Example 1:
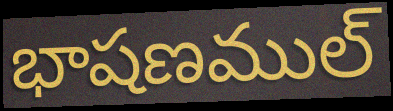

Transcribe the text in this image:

భాషణముల్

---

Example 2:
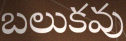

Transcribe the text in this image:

బలుకవు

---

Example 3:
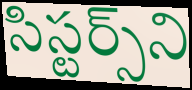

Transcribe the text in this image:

సిస్టర్స్‌ని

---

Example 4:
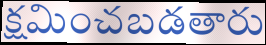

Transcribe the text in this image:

క్షమించబడతారు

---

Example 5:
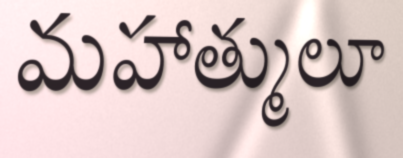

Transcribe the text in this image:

మహాత్ములూ